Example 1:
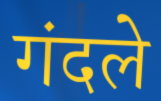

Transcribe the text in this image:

गंदले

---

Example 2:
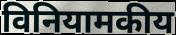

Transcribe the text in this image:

विनियामकीय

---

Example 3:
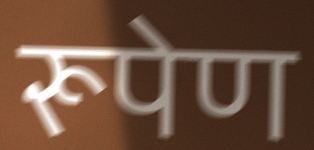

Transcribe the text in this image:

रूपेण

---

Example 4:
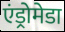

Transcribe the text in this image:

एंड्रोमेडा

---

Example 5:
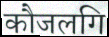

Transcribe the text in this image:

कौजलगि